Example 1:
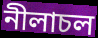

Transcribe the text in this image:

নীলাচল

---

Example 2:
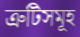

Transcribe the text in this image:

ত্ৰুটিসমূহ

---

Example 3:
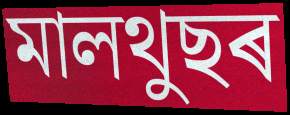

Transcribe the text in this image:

মালথুছৰ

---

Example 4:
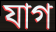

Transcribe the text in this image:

যাগ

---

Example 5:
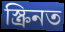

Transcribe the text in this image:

স্ক্ৰিনত